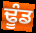
ਢੂੰਡ